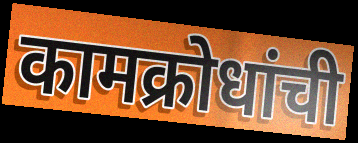
कामक्रोधांची